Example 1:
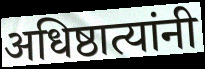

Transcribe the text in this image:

अधिष्ठात्यांनी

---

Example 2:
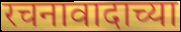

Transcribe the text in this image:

रचनावादाच्या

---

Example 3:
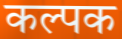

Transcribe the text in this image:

कल्पक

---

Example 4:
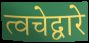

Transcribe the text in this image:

त्वचेद्वारे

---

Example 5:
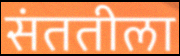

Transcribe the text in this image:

संततीला